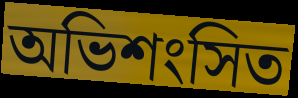
অভিশংসিত